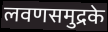
लवणसमुद्रके